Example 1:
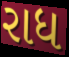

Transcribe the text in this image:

રાધ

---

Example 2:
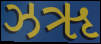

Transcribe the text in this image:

ઝૠ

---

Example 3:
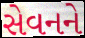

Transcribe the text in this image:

સેવનને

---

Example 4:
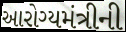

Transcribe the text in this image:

આરોગ્યમંત્રીની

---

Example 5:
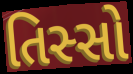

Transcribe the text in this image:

તિસ્સો